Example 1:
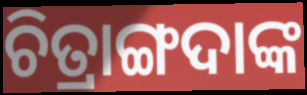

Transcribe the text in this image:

ଚିତ୍ରାଙ୍ଗଦାଙ୍କ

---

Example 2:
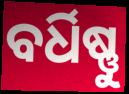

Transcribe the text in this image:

ବର୍ଧିଷ୍ଣୁ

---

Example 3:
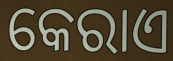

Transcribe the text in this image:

କେରାଏ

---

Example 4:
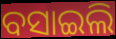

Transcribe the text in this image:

ବସାଇଲି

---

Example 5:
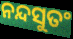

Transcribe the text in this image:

ନନ୍ଦସୁତଂ